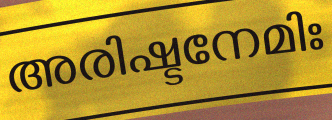
അരിഷ്ടനേമിഃ